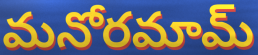
మనోరమామ్